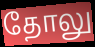
தோலு